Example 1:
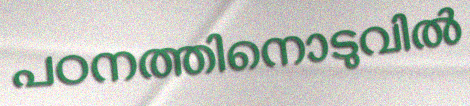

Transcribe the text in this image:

പഠനത്തിനൊടുവിൽ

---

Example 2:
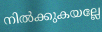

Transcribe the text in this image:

നിൽക്കുകയല്ലേ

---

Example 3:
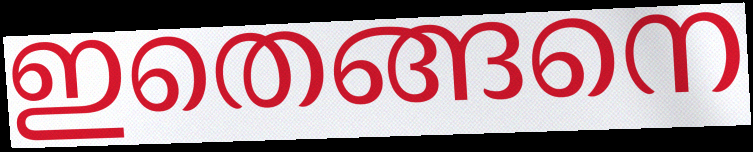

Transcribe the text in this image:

ഇതെങ്ങനെ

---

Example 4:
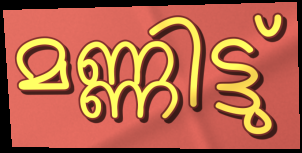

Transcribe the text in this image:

മണ്ണിട്ടു്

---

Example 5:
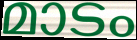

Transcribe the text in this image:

മാടം